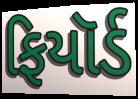
ફિયૉર્ડ